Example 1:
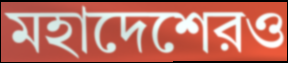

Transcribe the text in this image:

মহাদেশেরও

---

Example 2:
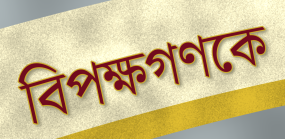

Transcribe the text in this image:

বিপক্ষগণকে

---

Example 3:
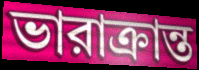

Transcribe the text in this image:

ভারাক্রান্ত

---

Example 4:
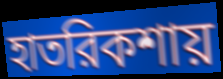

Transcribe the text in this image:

হাতরিকশায়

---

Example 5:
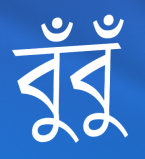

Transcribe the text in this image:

বুঁবুঁ